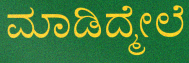
ಮಾಡಿದ್ಮೇಲೆ